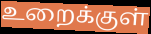
உறைக்குள்